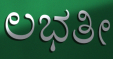
ಲಭತೀ